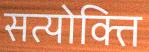
सत्योक्ति